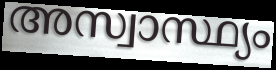
അസ്വാസ്ഥ്യം